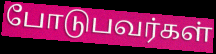
போடுபவர்கள்